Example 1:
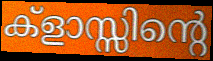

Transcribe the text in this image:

ക്ളാസ്സിന്റെ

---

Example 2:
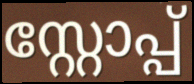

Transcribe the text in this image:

സ്റ്റോപ്പ്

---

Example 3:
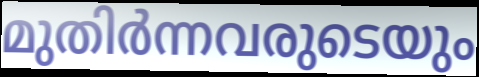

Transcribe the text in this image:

മുതിർന്നവരുടെയും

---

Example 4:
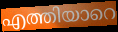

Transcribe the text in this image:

എത്തിയാറെ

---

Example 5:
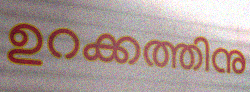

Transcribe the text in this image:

ഉറക്കത്തിനു